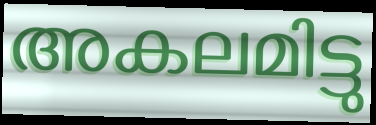
അകലമിട്ടു